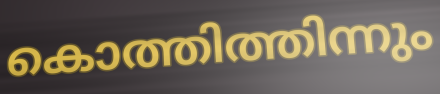
കൊത്തിത്തിന്നും